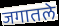
जगातले